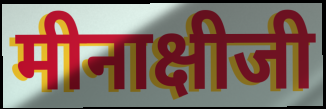
मीनाक्षीजी